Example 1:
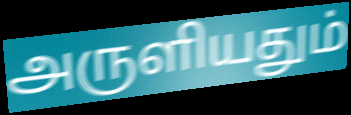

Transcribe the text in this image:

அருளியதும்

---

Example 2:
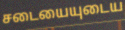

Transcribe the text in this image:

சடையையுடைய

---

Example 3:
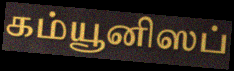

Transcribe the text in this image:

கம்யூனிஸப்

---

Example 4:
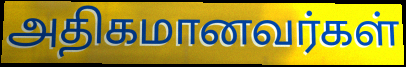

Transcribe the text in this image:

அதிகமானவர்கள்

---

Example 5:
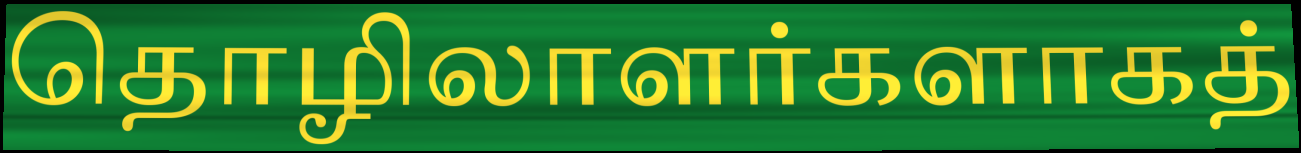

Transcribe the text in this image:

தொழிலாளர்களாகத்